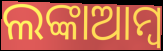
ଲଙ୍କାଆମ୍ବ